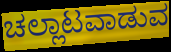
ಚಲ್ಲಾಟವಾಡುವ